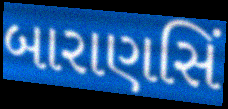
બારાણસિં